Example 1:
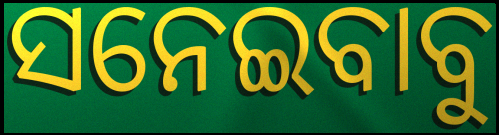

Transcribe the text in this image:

ସନେଇବାବୁ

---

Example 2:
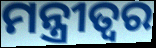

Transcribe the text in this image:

ମନ୍ତ୍ରୀତ୍ୱର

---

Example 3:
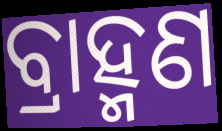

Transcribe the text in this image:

ବ୍ରାହ୍ମଣ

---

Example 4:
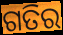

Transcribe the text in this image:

ଗତିର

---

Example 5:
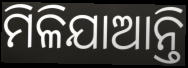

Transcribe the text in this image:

ମିଳିଯାଆନ୍ତି